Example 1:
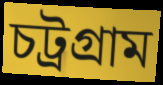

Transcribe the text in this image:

চট্রগ্রাম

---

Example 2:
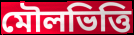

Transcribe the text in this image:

মৌলভিত্তি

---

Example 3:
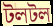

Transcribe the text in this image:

টলটল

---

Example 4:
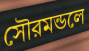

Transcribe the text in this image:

সৌরমন্ডলে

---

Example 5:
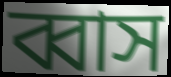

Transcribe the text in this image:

ব্বাস